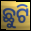
ଛୁଟି